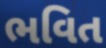
ભવિત